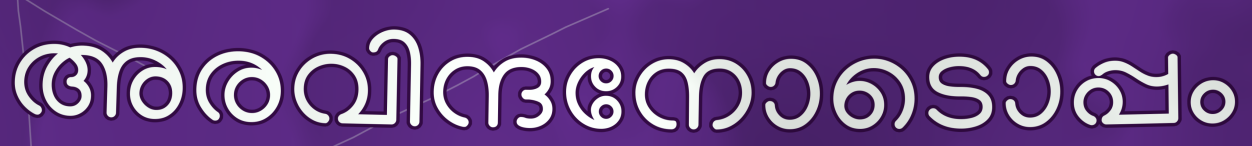
അരവിന്ദനോടൊപ്പം